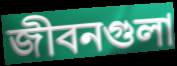
জীবনগুলা